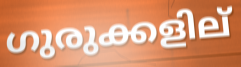
ഗുരുക്കളില്